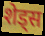
शेड्स